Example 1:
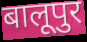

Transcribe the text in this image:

बालूपुर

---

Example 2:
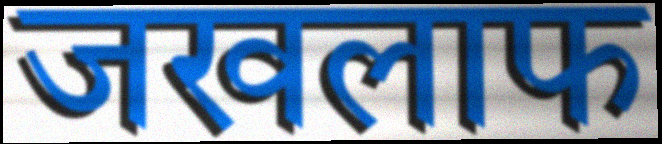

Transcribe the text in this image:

जखलाफ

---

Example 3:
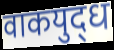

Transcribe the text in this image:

वाकयुद्ध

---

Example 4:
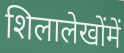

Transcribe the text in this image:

शिलालेखोंमें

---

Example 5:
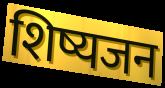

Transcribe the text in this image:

शिष्यजन